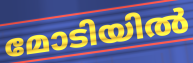
മോടിയിൽ